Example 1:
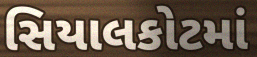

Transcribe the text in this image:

સિયાલકોટમાં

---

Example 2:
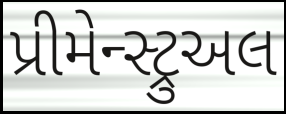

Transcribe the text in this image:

પ્રીમેન્સ્ટ્રુઅલ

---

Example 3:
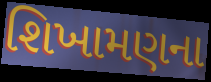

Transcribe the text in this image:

શિખામણના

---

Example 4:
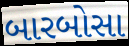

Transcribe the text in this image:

બારબોસા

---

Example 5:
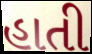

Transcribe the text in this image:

હાતી